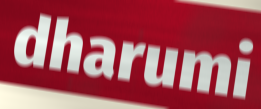
dharumi